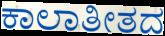
ಕಾಲಾತೀತದ